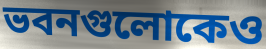
ভবনগুলোকেও